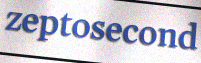
zeptosecond